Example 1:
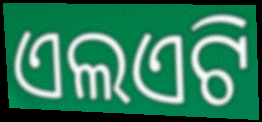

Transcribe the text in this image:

ଏଲଏଟି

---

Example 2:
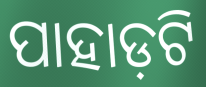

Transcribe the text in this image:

ପାହାଡ଼ଟି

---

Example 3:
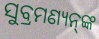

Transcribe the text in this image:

ସୁବ୍ରମଣ୍ୟନ୍‌ଙ୍କ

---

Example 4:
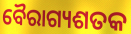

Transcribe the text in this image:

ବୈରାଗ୍ୟଶତକ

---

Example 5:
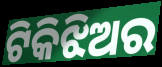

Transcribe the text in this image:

ଟିକିଝିଅର